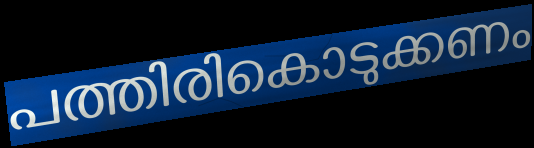
പത്തിരികൊടുക്കണം